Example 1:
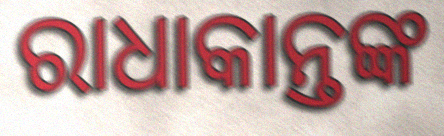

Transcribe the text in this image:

ରାଧାକାନ୍ତଙ୍କ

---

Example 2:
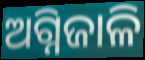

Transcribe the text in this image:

ଅଗ୍ନିଜାଳି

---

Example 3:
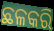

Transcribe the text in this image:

ଛଳକରି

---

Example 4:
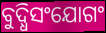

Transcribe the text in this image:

ବୁଦ୍ଧିସଂଯୋଗଂ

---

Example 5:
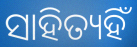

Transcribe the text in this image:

ସାହିତ୍ୟହିଁ